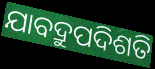
ଯାବଦ୍ରୁପଦିଶତି